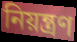
নিয়ন্ত্রণ